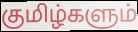
குமிழ்களும்